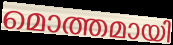
മൊത്തമായി